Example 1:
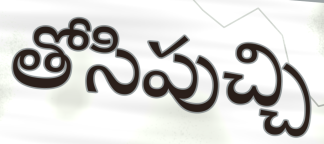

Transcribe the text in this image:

తోసిపుచ్చి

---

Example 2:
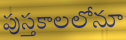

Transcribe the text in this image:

పుస్తకాలలోనూ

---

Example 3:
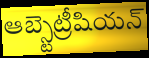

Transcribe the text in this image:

ఆబ్స్టెట్రీషియన్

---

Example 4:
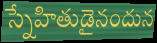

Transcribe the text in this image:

స్నేహితుడైనందున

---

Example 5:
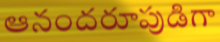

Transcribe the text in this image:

ఆనందరూపుడిగా